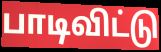
பாடிவிட்டு